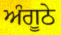
ਅੰਗੂਠੇ